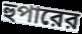
হুপারের